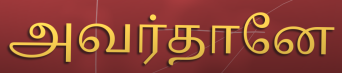
அவர்தானே